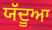
ਯੱਦੂਆ